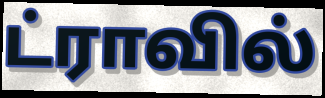
ட்ராவில்